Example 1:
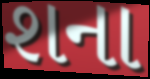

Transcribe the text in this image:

શના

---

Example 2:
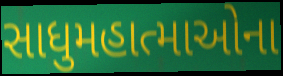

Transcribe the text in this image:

સાધુમહાત્માઓના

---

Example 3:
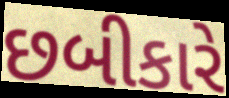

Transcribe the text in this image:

છબીકારે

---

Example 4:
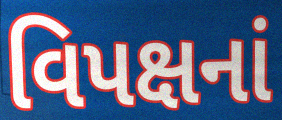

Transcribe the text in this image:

વિપક્ષનાં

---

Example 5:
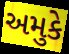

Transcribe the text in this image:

અમુકે